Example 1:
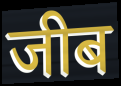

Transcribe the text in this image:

जीब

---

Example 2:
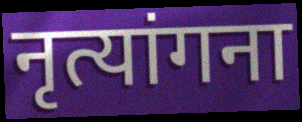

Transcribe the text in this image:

नृत्यांगना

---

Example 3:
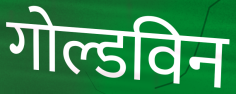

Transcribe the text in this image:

गोल्डविन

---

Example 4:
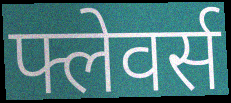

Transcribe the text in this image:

फ्लेवर्स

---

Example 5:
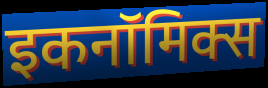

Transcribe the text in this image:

इकनॉमिक्स